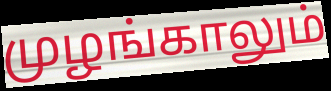
முழங்காலும்